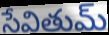
సేవితుమ్